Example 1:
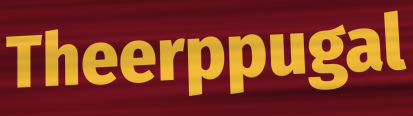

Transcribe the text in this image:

Theerppugal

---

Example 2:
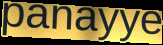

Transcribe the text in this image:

panayye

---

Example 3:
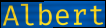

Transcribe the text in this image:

Albert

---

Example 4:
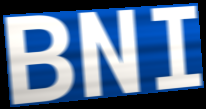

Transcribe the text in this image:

BNI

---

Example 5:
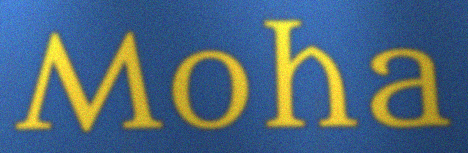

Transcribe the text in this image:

Moha